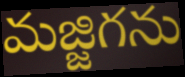
మజ్జిగను